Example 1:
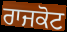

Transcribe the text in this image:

ਰਾਜਕੋਟ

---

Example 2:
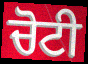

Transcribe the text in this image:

ਚੋਟੀ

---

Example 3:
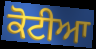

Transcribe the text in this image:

ਕੋਟੀਆ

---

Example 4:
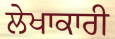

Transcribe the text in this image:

ਲੇਖਾਕਾਰੀ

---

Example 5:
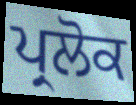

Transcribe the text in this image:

ਪ੍ਰਲੋਕ